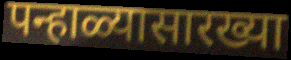
पन्हाळ्यासारख्या